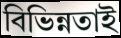
বিভিন্নতাই